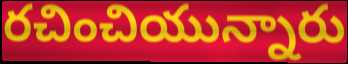
రచించియున్నారు